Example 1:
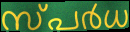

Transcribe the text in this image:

സ്പർധ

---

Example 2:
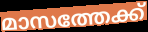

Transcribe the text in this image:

മാസത്തേക്ക്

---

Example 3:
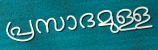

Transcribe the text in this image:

പ്രസാദമുള്ള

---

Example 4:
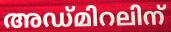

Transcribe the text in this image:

അഡ്മിറലിന്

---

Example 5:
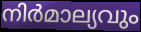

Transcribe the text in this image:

നിർമാല്യവും